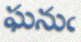
ఘనుఁ